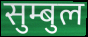
सुम्बुल